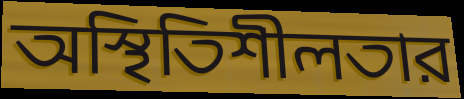
অস্থিতিশীলতার